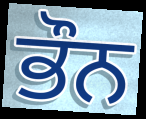
ਭੌਨ